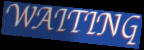
WAITING